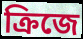
ক্রিজে